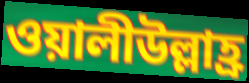
ওয়ালীউল্লাহ্র